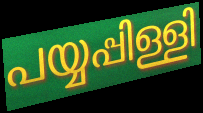
പയ്യപ്പിള്ളി